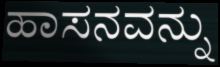
ಹಾಸನವನ್ನು